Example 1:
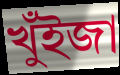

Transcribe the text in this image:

খুঁইজা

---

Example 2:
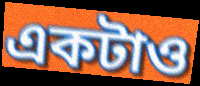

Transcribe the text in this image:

একটাও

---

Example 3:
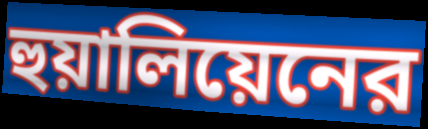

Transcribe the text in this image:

হুয়ালিয়েনের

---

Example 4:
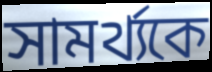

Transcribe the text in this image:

সামর্থ্যকে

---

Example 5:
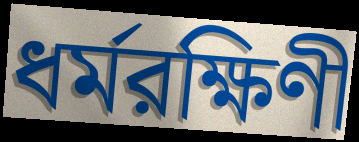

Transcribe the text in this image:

ধর্মরক্ষিণী